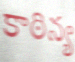
కాఠిన్య